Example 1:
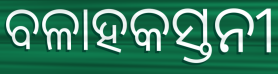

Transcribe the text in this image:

ବଳାହକସ୍ତନୀ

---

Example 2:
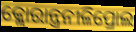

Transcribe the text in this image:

କ୍ଲୋରାନ୍ତ୍ରନୀଳିପ୍ରୋଲ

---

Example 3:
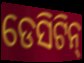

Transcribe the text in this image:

ଡେସିଟିନ୍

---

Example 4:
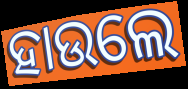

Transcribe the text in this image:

ହାଉଲେ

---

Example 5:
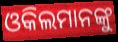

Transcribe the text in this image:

ଓକିଲମାନଙ୍କୁ